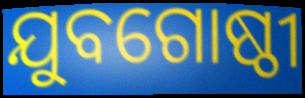
ଯୁବଗୋଷ୍ଠୀ